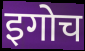
इगोच